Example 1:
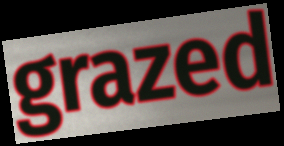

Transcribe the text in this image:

grazed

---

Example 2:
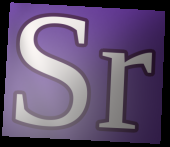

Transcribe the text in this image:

Sr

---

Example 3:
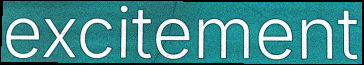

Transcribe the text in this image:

excitement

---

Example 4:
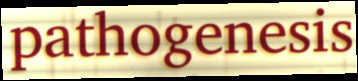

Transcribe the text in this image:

pathogenesis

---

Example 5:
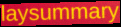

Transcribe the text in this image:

laysummary